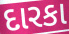
દારકા